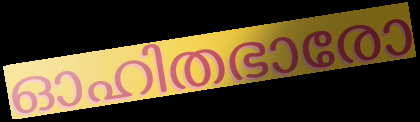
ഓഹിതഭാരോ